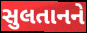
સુલતાનને